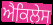
ਐਕਿਲੇਸ